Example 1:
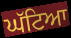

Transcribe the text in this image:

ਘੱਟਿਆ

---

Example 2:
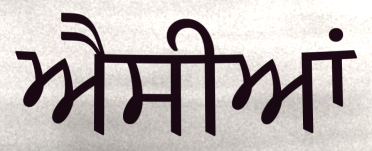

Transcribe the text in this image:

ਐਸੀਆਂ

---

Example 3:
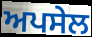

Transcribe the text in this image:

ਅਪਸੇਲ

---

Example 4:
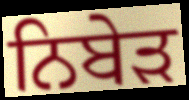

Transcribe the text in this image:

ਨਿਬੇੜ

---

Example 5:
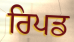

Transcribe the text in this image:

ਰਿਪਡ